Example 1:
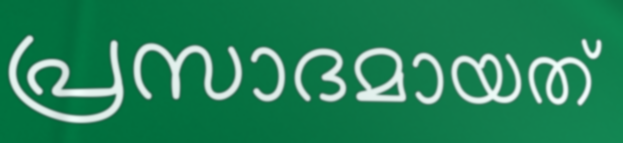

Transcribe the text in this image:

പ്രസാദമായത്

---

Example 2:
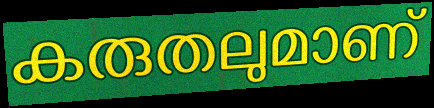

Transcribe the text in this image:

കരുതലുമാണ്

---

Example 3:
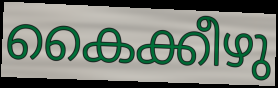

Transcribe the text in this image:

കൈക്കീഴു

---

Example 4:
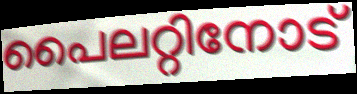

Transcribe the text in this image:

പൈലറ്റിനോട്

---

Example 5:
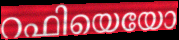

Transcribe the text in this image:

റഫിയെയോ